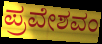
ಪ್ರವೇಶವಂ